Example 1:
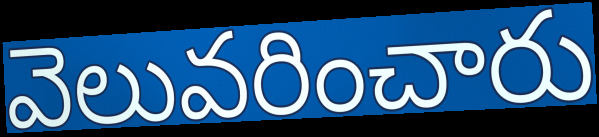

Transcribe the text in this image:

వెలువరించారు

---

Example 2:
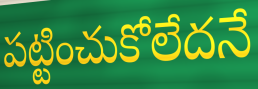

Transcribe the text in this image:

పట్టించుకోలేదనే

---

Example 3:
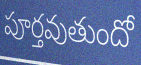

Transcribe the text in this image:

పూర్తవుతుందో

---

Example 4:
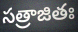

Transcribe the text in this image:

సత్రాజితః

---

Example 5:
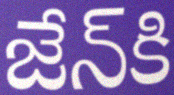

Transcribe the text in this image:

జేన్‌కి